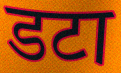
डटा